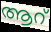
ആറ്